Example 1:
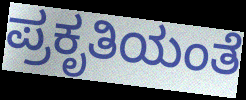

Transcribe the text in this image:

ಪ್ರಕೃತಿಯಂತೆ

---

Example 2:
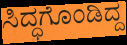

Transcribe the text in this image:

ಸಿದ್ಧಗೊಂಡಿದ್ದ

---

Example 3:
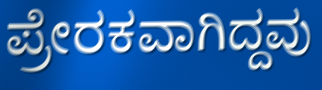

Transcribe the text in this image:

ಪ್ರೇರಕವಾಗಿದ್ದವು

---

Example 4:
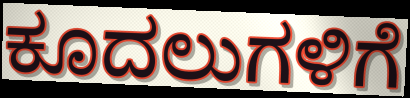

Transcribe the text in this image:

ಕೂದಲುಗಳಿಗೆ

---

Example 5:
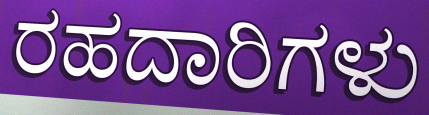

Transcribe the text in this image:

ರಹದಾರಿಗಳು